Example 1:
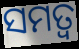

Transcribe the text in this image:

ସମତ୍ଵ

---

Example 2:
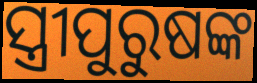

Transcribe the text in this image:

ସ୍ତ୍ରୀପୁରୁଷଙ୍କ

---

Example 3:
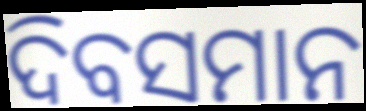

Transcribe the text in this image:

ଦିବସମାନ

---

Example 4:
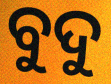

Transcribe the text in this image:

ବୁଦୁ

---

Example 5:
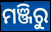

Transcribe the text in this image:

ମଞ୍ଜିରୁ